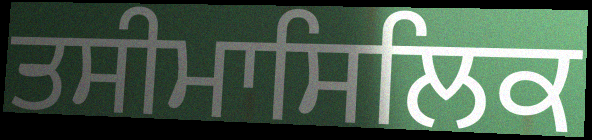
ਤਸੀਮਾਸਿਲਿਕ